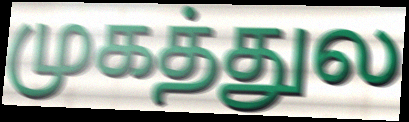
முகத்துல